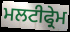
ਮਲਟੀਫ੍ਰੇਮ